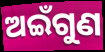
ଅଇଁଗୁଣ